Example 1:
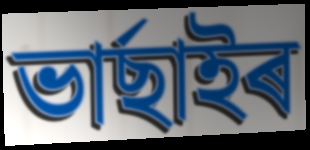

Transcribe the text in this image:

ভাৰ্ছাইৰ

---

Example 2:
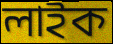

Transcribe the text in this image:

লাইক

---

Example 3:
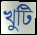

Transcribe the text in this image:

খুটি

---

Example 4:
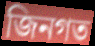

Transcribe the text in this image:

জিনগত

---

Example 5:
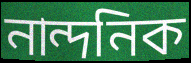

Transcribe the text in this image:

নান্দনিক